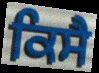
ਕਿਸੈ